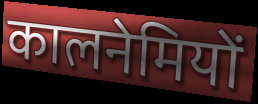
कालनेमियों